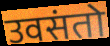
उवसंतो